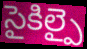
సైకిల్పై